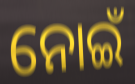
ନୋଇଁ